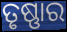
ତୃଷ୍ଣାର